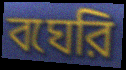
বঘেরি